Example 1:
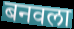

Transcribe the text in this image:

बनवला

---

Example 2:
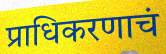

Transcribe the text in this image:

प्राधिकरणाचं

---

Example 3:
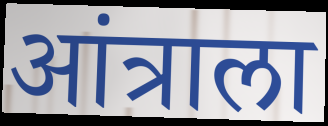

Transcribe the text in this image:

आंत्राला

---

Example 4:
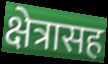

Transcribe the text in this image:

क्षेत्रासह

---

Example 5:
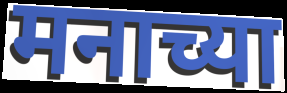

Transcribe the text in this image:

मनाच्या